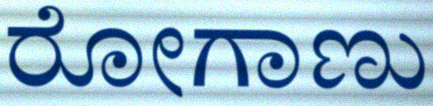
ರೋಗಾಣು